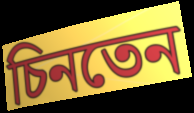
চিনতেন